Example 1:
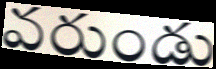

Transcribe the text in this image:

వరుండు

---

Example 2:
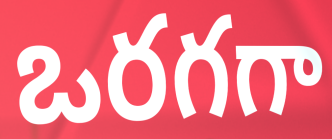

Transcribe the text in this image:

ఒరగగా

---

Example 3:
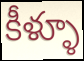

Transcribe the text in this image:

కీళ్ళూ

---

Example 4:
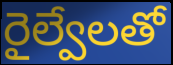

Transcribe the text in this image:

రైల్వేలతో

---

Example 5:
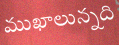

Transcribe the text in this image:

ముఖాలున్నది